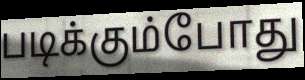
படிக்கும்போது